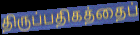
திருப்பதிகத்தைப்